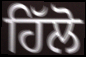
ਹਿੱਲੋ